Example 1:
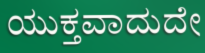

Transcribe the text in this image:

ಯುಕ್ತವಾದುದೇ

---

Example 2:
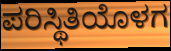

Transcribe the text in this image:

ಪರಿಸ್ಥಿತಿಯೊಳಗ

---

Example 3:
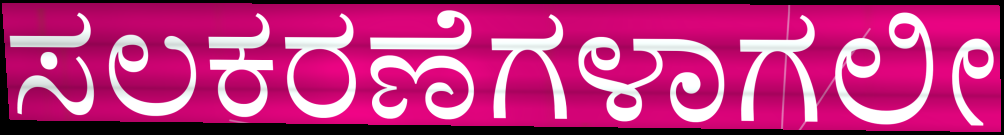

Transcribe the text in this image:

ಸಲಕರಣೆಗಳಾಗಲೀ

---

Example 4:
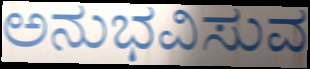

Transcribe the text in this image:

ಅನುಭವಿಸುವ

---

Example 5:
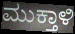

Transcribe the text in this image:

ಮುಕ್ತಾಳಿ